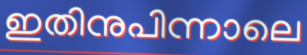
ഇതിനുപിന്നാലെ